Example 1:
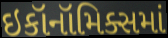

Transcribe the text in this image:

ઇકૉનૉમિક્સમાં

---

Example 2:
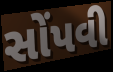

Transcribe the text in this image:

સોંપવી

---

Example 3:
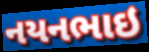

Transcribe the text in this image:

નયનભાઇ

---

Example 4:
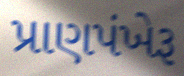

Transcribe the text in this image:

પ્રાણપંખેરૂ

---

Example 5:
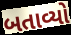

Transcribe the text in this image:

બતાવ્યો